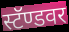
स्टॅण्डवर